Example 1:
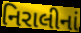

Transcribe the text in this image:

નિરાલીનાં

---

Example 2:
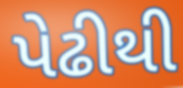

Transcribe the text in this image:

પેઢીથી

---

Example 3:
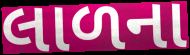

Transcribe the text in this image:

લાળના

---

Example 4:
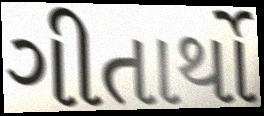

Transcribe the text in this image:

ગીતાર્થો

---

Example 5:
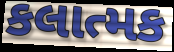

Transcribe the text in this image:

કલાત્મક